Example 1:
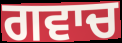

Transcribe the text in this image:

ਗਵਾਚ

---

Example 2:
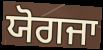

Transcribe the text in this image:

ਯੋਗਜਾ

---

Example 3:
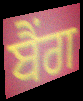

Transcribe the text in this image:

ਬੈਂਗ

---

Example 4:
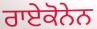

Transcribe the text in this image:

ਰਾਏਕੋਨੇਨ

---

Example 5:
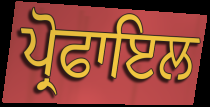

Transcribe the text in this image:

ਪ੍ਰੋਫਾਇਲ